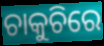
ଚାକୁଚିରେ